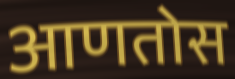
आणतोस